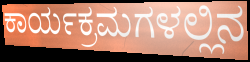
ಕಾರ್ಯಕ್ರಮಗಳಲ್ಲಿನ